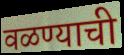
वळण्याची